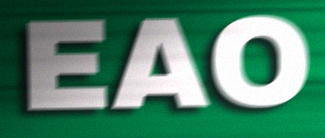
EAO